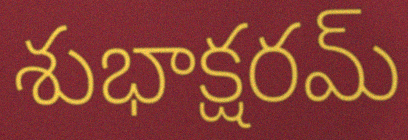
శుభాక్షరమ్